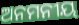
ଅନମନୀୟ